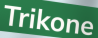
Trikone